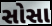
સોસા